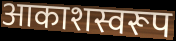
आकाशस्वरूप